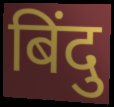
बिंदु